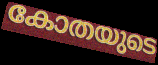
കോതയുടെ